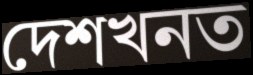
দেশখনত